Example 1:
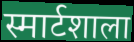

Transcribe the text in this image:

स्मार्टशाला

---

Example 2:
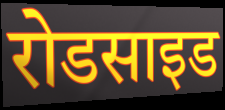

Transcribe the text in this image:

रोडसाइड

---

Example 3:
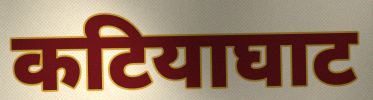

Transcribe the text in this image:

कटियाघाट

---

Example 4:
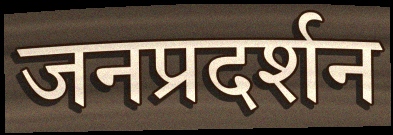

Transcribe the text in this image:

जनप्रदर्शन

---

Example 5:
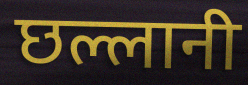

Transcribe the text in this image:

छल्लानी